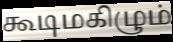
கூடிமகிழும்